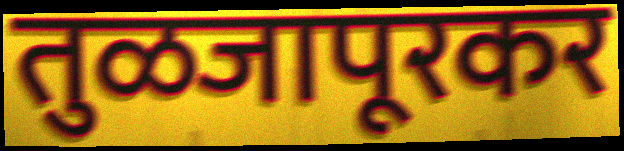
तुळजापूरकर